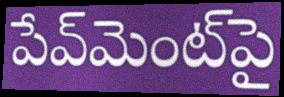
పేవ్‌మెంట్‌పై